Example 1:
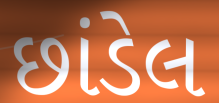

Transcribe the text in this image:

છાંડેલ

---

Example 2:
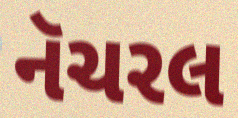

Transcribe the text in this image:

નૅચરલ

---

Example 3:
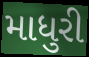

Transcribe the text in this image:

માધુરી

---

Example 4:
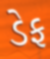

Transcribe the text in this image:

ડેફ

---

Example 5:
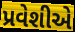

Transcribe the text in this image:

પ્રવેશીએ